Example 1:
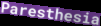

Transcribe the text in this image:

Paresthesia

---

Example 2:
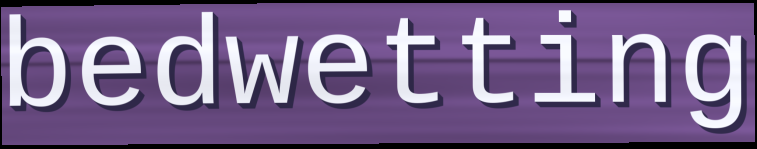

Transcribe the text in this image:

bedwetting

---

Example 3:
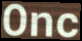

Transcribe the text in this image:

Onc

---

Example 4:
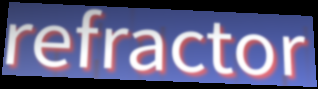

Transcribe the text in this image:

refractor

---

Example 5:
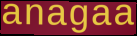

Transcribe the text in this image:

anagaa